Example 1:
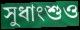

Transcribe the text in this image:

সুধাংশুও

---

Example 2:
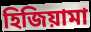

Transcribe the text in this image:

হিজিয়ামা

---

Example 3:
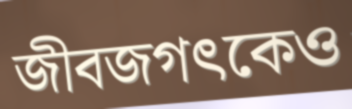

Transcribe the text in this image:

জীবজগৎকেও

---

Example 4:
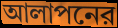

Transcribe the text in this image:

আলাপনের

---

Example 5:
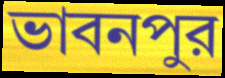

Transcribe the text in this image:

ভাবনপুর